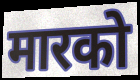
मारको